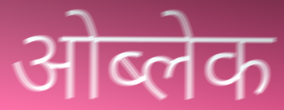
ओब्लेक